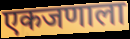
एकजणाला